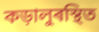
কড়ালুৰস্থিত